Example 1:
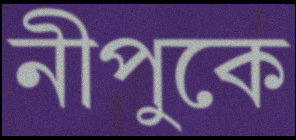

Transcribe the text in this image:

নীপুকে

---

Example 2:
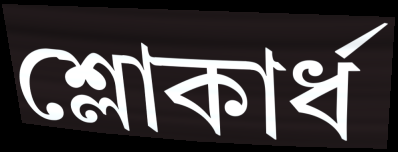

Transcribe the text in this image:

শ্লোকার্ধ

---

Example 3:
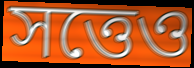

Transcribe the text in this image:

সত্তেও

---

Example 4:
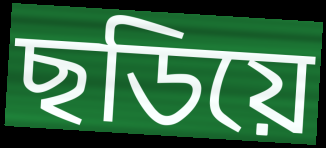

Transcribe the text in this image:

ছডিয়ে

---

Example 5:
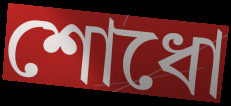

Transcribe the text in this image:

শোধো